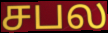
சபல